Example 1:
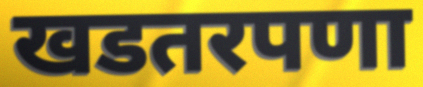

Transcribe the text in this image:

खडतरपणा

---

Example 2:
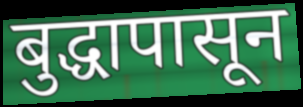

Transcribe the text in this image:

बुद्धापासून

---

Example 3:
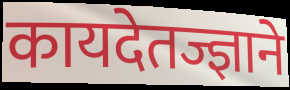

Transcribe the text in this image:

कायदेतज्ज्ञाने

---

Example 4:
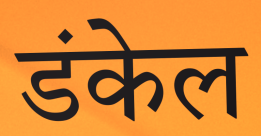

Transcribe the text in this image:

डंकेल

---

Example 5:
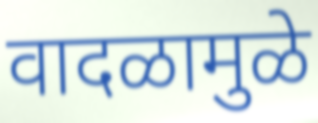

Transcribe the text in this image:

वादळामुळे